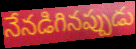
నేనడిగినప్పుడు